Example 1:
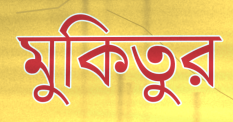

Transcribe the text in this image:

মুকিতুর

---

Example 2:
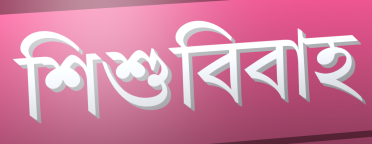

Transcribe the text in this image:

শিশুবিবাহ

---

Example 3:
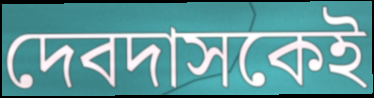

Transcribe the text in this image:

দেবদাসকেই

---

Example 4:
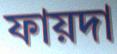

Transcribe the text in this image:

ফায়দা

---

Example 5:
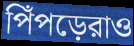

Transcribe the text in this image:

পিঁপড়েরাও